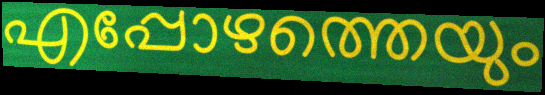
എപ്പോഴത്തെയും